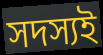
সদস্যই